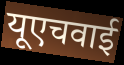
यूएचवाई